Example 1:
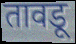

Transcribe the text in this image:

तावडू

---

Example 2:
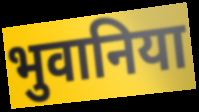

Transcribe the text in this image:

भुवानिया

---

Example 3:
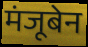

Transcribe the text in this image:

मंजूबेन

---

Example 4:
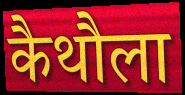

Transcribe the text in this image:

कैथौला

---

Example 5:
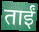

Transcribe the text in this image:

ताईं